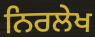
ਨਿਰਲੇਖ